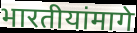
भारतीयांमागे